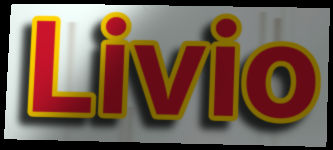
Livio